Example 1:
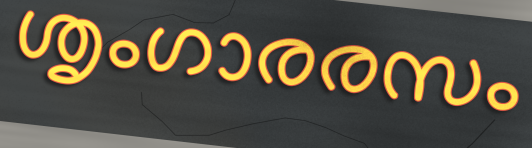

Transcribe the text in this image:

ശൃംഗാരരസം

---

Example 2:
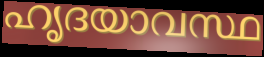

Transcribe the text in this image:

ഹൃദയാവസ്ഥ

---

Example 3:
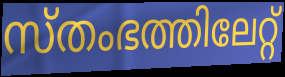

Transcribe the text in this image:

സ്തംഭത്തിലേറ്റ്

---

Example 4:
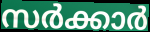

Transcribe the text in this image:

സർക്കാർ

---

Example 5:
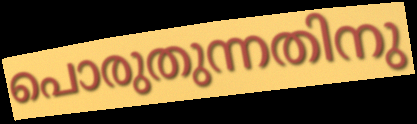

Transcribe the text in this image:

പൊരുതുന്നതിനു